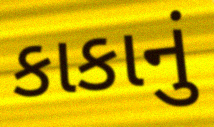
કાકાનું